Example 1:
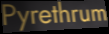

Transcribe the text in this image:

Pyrethrum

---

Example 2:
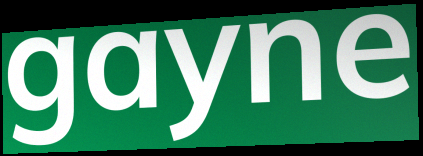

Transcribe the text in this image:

gayne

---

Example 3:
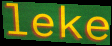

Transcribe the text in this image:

leke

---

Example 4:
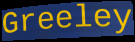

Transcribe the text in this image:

Greeley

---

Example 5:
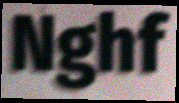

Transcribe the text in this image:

Nghf